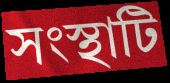
সংস্থাটি